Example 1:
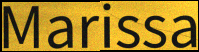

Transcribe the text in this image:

Marissa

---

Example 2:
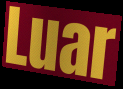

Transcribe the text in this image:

Luar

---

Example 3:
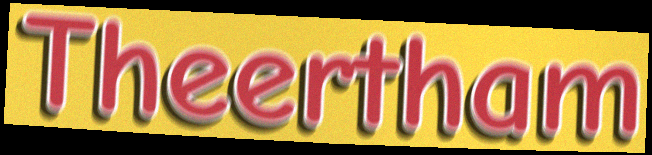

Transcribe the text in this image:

Theertham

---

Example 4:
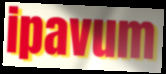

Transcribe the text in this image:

ipavum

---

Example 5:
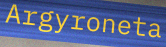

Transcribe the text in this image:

Argyroneta